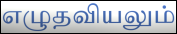
எழுதவியலும்